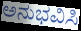
ಅನುಭವಿಸಿ